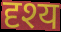
दृश्‍य